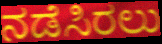
ನಡೆಸಿರಲು